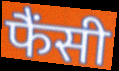
फैंसी